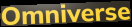
Omniverse